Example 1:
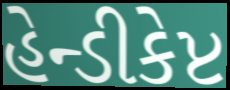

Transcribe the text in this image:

હેન્ડીકેપ્ટ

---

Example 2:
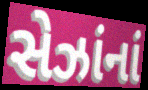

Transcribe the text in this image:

સેઝાંનાં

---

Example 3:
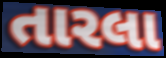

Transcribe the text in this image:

તારલા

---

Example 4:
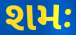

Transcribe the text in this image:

શમઃ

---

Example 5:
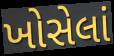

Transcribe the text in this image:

ખોસેલાં